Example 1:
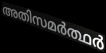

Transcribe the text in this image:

അതിസമർത്ഥർ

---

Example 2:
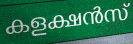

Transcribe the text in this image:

കളക്ഷൻസ്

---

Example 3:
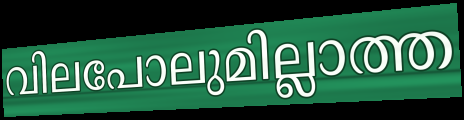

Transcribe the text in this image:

വിലപോലുമില്ലാത്ത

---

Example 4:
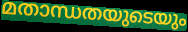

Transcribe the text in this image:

മതാന്ധതയുടെയും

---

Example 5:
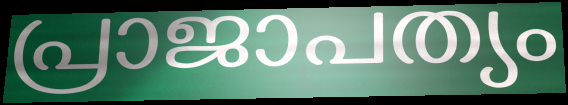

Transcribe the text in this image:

പ്രാജാപത്യം